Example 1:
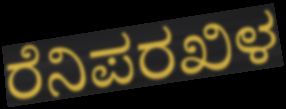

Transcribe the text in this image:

ರೆನಿಪರಖಿಳ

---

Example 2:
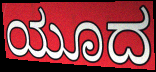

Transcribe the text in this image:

ಯೂದ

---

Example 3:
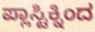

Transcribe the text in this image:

ಪ್ಲಾಸ್ಟಿಕ್ನಿಂದ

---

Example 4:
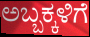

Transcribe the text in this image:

ಅಬ್ಬಕ್ಕಳಿಗೆ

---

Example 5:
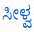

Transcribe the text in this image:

ಸೀಳ್ವ